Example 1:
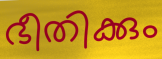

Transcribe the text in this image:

ഭീതിക്കും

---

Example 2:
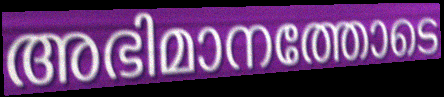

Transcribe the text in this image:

അഭിമാനത്തോടെ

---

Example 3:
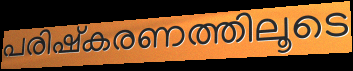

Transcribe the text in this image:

പരിഷ്കരണത്തിലൂടെ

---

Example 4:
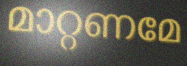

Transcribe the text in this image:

മാറ്റണമേ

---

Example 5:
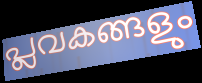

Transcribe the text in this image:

പ്ലവകങ്ങളും